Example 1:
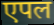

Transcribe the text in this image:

एपल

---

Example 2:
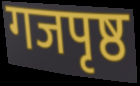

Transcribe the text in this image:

गजपृष्ठ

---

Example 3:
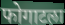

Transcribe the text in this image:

फोगाटला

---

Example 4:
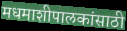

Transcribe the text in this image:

मधमाशीपालकांसाठी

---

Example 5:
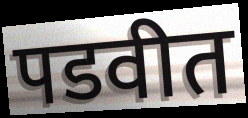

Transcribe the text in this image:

पडवीत